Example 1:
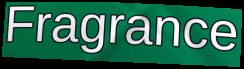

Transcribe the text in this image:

Fragrance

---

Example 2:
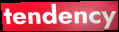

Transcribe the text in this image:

tendency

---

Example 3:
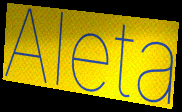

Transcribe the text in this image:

Aleta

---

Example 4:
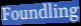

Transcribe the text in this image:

Foundling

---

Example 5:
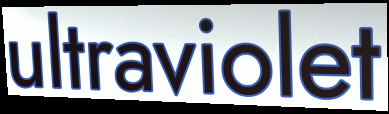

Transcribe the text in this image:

ultraviolet